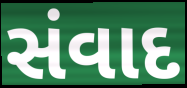
સંવાદ